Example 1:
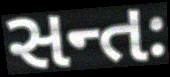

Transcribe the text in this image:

સન્તઃ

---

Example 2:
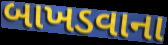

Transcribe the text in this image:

બાખડવાના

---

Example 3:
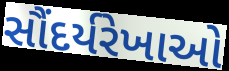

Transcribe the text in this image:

સૌંદર્યરેખાઓ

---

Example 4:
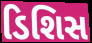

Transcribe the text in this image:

ડિશિસ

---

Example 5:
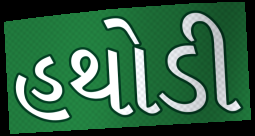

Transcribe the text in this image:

હથોડી